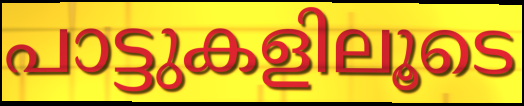
പാട്ടുകളിലൂടെ